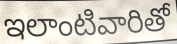
ఇలాంటివారితో